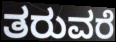
ತರುವರೆ